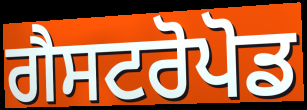
ਗੈਸਟਰੋਪੋਡ